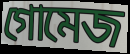
গোমেজ